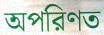
অপরিণত